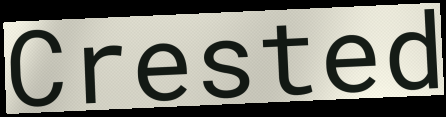
Crested